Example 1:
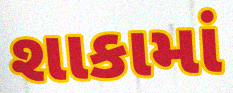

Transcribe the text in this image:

શાકામાં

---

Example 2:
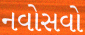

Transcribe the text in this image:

નવોસવો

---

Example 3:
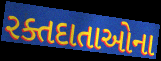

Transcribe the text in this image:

રક્તદાતાઓના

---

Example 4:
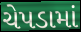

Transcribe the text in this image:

ચેપડામાં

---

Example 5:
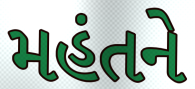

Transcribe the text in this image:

મહંતને